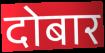
दोबार